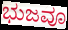
ಭುಜವೂ